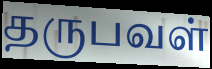
தருபவள்